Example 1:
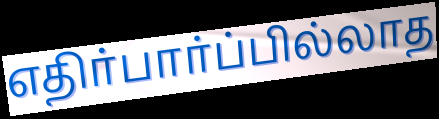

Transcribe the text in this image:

எதிர்பார்ப்பில்லாத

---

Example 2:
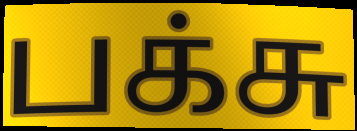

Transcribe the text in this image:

பக்சு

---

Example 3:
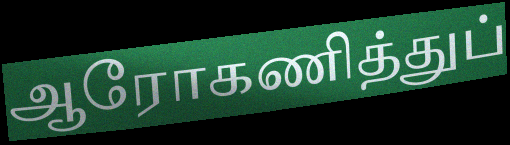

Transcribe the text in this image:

ஆரோகணித்துப்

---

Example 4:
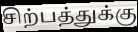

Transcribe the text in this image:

சிற்பத்துக்கு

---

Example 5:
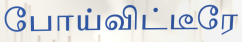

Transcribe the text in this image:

போய்விட்டீரே